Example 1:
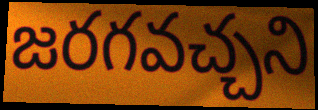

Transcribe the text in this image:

జరగవచ్చని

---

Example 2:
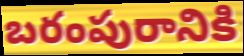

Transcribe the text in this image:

బరంపురానికి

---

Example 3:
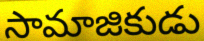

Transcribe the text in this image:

సామాజికుడు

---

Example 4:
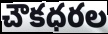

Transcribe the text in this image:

చౌకధరల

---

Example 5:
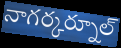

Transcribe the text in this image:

నాగర్కర్నూల్